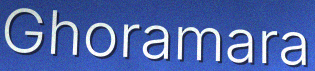
Ghoramara